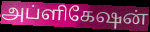
அப்ளிகேஷன்